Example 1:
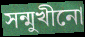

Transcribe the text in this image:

সন্মুখীনো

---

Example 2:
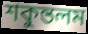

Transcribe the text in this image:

শকুন্তলম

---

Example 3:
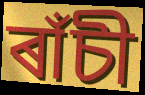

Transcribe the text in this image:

ৰাঁচী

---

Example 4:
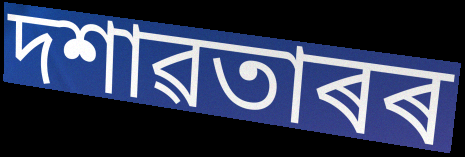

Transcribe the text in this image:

দশাৱতাৰৰ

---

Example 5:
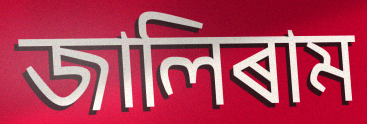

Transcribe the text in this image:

জালিৰাম